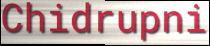
Chidrupni